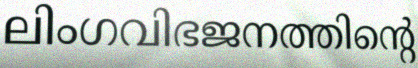
ലിംഗവിഭജനത്തിന്റെ